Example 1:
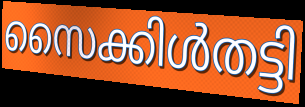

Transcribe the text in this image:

സൈക്കിൾതട്ടി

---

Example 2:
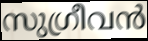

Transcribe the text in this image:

സുഗ്രീവൻ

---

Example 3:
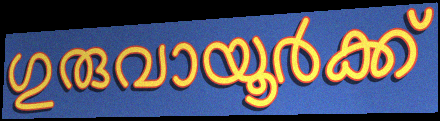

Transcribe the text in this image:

ഗുരുവായൂർക്ക്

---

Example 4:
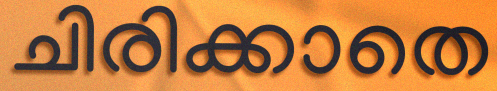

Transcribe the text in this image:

ചിരിക്കാതെ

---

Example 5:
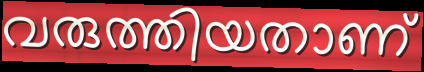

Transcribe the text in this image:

വരുത്തിയതാണ്